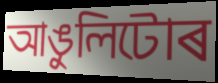
আঙুলিটোৰ